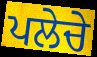
ਪਲੇਚੇ